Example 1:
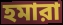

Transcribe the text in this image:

হমারা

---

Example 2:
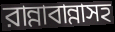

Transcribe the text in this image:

রান্নাবান্নাসহ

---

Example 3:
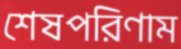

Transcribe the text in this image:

শেষপরিণাম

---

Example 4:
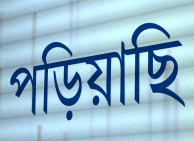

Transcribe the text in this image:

পড়িয়াছি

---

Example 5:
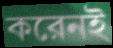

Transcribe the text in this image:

করেনই